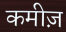
कमीज़